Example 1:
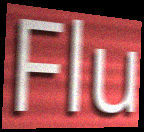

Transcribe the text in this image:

Flu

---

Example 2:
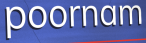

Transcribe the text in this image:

poornam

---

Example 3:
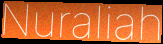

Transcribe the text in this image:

Nuraliah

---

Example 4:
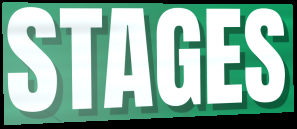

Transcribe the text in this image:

STAGES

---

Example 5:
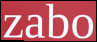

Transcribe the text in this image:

zabo